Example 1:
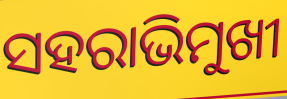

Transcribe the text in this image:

ସହରାଭିମୁଖୀ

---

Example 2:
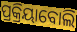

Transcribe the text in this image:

ପ୍ରକ୍ରିୟାବୋଲି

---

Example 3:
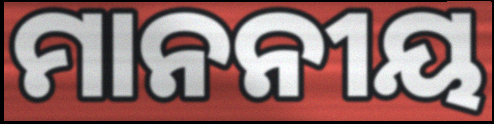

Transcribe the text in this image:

ମାନନୀୟ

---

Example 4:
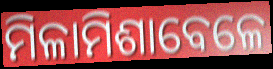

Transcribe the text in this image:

ମିଳାମିଶାବେଳେ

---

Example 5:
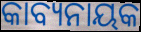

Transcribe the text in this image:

କାବ୍ୟନାୟକ